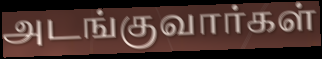
அடங்குவார்கள்